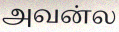
அவன்ல